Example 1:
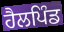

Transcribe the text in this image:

ਹੈਲਪਿੰਡ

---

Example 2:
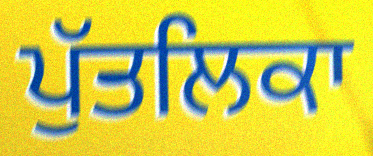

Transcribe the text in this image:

ਪੁੱਤਲਿਕਾ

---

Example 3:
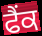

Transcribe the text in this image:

ਫੈਂਕ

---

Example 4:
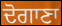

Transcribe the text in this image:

ਦੋਗਾਣਾ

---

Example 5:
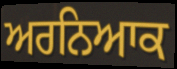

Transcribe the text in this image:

ਅਰਨਿਆਕ